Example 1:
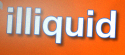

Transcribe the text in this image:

illiquid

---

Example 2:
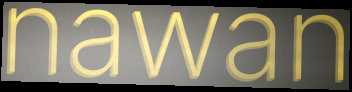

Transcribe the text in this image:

nawan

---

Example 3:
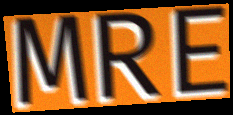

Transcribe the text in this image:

MRE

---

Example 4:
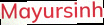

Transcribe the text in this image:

Mayursinh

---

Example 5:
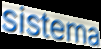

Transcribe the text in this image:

sistema